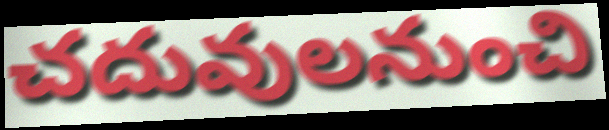
చదువులనుంచి